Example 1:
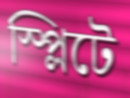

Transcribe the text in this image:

স্প্লিটে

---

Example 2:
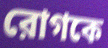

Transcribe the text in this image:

রোগকে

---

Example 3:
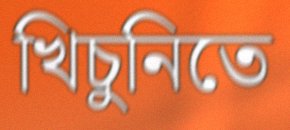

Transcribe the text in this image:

খিচুনিতে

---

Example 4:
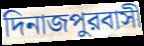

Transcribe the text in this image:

দিনাজপুরবাসী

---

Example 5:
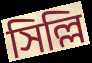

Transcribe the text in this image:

সিল্লি